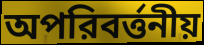
অপরিবর্ত্তনীয়